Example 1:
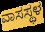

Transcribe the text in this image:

ವಾಸಸ್ಥಳ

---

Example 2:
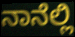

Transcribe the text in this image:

ನಾನೆಲ್ಲಿ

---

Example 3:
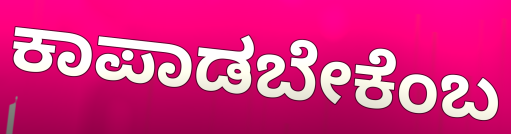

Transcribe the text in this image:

ಕಾಪಾಡಬೇಕೆಂಬ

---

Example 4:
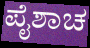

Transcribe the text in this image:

ಪೈಶಾಚ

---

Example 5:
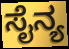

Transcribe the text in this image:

ಸೈನ್ಯ